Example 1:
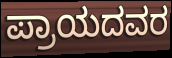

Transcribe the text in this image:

ಪ್ರಾಯದವರ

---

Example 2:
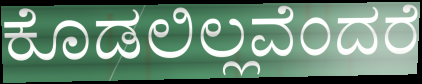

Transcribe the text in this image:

ಕೊಡಲಿಲ್ಲವೆಂದರೆ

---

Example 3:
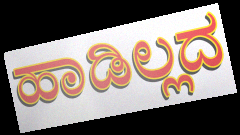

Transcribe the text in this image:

ಹಾಡಿಲ್ಲದ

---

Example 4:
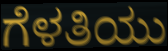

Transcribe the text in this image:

ಗೆಳತಿಯು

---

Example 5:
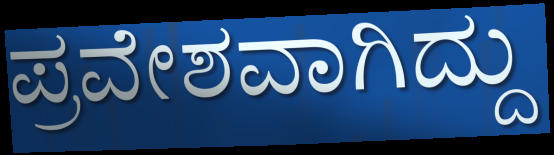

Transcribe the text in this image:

ಪ್ರವೇಶವಾಗಿದ್ದು